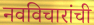
नवविचारांची